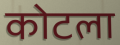
कोटला